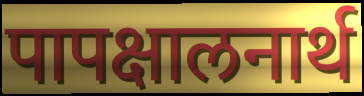
पापक्षालनार्थ